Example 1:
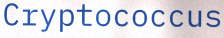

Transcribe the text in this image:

Cryptococcus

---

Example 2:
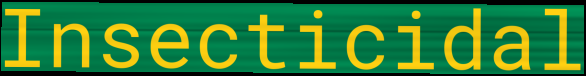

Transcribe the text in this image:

Insecticidal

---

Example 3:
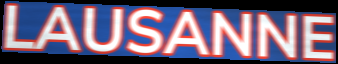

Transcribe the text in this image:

LAUSANNE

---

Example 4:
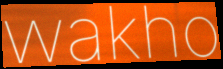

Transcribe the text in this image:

wakho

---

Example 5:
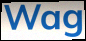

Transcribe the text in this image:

Wag